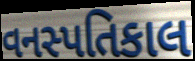
વનસ્પતિકાલ